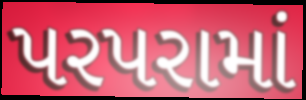
પરપરામાં